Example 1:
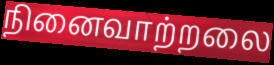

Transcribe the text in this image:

நினைவாற்றலை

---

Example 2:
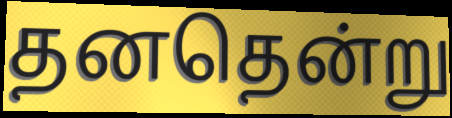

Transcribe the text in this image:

தனதென்று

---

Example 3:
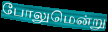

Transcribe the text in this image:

போலுமென்று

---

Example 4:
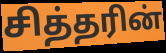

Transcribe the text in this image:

சித்தரின்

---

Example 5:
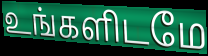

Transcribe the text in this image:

உங்களிடமே